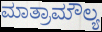
ಮಾತ್ರಾಮೌಲ್ಯ